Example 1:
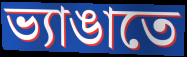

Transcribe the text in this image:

ভ্যাঙাতে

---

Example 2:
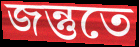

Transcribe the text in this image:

জন্তুতে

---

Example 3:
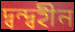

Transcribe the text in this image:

দ্বন্দ্বহীন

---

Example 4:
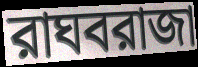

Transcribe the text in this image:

রাঘবরাজা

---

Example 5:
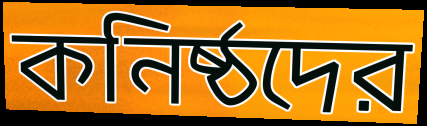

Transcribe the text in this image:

কনিষ্ঠদের